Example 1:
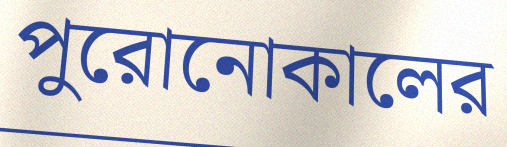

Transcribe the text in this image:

পুরোনোকালের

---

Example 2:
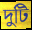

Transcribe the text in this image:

দুটি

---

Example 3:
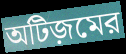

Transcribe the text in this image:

অটিজ়মের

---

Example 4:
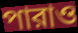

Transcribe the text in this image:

পারাও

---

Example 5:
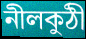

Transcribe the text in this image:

নীলকুঠী